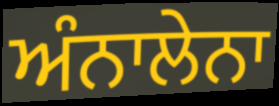
ਅੰਨਾਲੇਨਾ